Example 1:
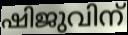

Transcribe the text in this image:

ഷിജുവിന്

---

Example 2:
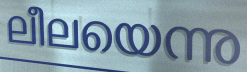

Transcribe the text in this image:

ലീലയെന്നു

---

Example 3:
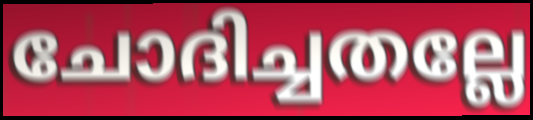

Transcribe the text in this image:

ചോദിച്ചതല്ലേ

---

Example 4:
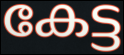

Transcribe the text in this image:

കേട്ട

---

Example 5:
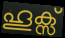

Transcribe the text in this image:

ഹൂക്സ്